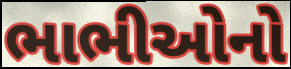
ભાભીઓનો